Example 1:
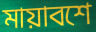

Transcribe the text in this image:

মায়াবশে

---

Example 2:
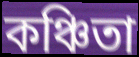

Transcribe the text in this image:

কঞ্চিতা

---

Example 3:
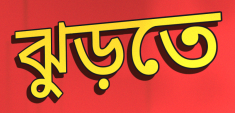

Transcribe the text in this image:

ঝুড়তে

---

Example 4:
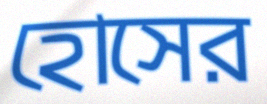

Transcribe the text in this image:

হোসের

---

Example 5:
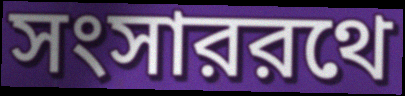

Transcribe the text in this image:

সংসাররথে